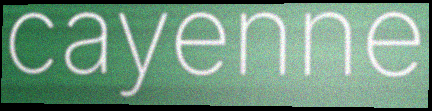
cayenne